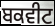
ਬਕਵੀਟ